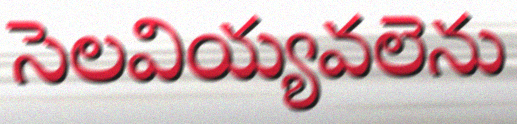
సెలవియ్యవలెను